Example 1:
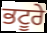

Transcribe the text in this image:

ਭਟੂਰੇ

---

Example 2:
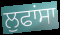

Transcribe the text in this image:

ਲੁਫਾਂਸਾ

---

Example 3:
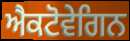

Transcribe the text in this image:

ਐਕਟੋਵੇਗਿਨ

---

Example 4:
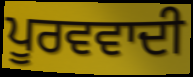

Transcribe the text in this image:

ਪੂਰਵਵਾਦੀ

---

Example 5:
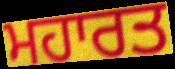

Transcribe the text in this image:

ਮਹਾਰਤ